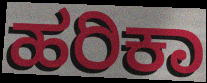
ಹರಿಕಾ